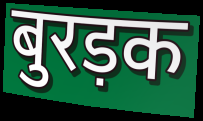
बुरड़क